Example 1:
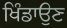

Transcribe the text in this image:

ਖਿੰਡਾਉਣ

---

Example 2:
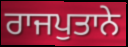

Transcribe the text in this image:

ਰਾਜਪੁਤਾਨੇ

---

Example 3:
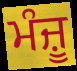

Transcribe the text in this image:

ਮੰਜ਼ੂ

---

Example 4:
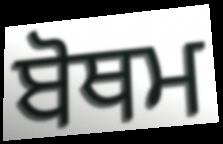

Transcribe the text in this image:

ਬੋਥਮ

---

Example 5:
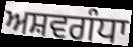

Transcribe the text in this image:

ਅਸ਼ਵਗੰਧਾ